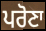
ਪਰੋਣਾ